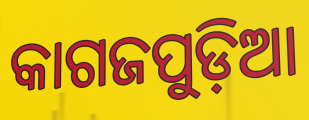
କାଗଜପୁଡ଼ିଆ